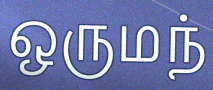
ஒருமந்